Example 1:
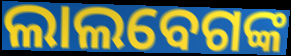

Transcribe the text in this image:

ଲାଲବେଗଙ୍କ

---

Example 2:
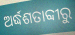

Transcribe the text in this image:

ଅର୍ଦ୍ଧଶତାବ୍ଦୀରୁ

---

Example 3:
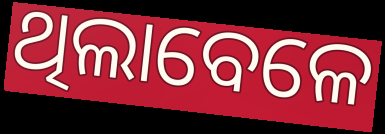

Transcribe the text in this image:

ଥିଲାବେଳେ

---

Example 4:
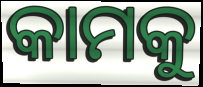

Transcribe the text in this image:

କାମକୁ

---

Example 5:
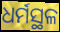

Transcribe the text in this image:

ଧର୍ମସ୍ଥଳ